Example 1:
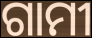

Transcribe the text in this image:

ଗାମୀ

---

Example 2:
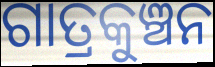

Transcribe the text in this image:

ଗାତ୍ରକୁଞ୍ଚନ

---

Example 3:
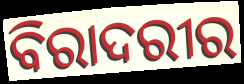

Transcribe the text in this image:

ବିରାଦରୀର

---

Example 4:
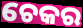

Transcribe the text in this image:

ଚେକର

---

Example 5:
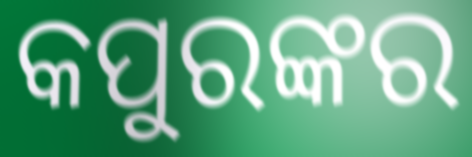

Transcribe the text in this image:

କପୁରଙ୍କର